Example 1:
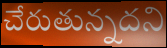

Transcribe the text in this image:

చేరుతున్నదని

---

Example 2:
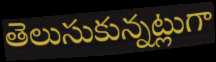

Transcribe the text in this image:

తెలుసుకున్నట్లుగా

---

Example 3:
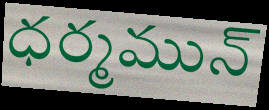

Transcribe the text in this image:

ధర్మమున్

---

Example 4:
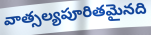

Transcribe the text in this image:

వాత్సల్యపూరితమైనది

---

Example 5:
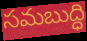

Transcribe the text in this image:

సమబుద్ధి